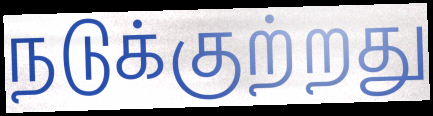
நடுக்குற்றது